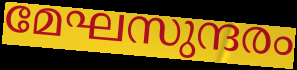
മേഘസുന്ദരം